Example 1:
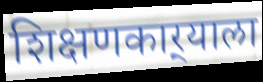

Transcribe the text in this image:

शिक्षणकार्याला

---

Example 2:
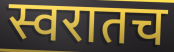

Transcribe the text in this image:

स्वरातच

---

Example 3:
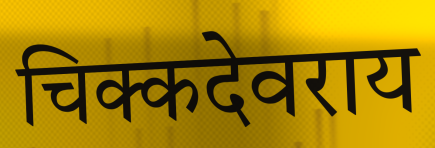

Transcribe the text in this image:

चिक्कदेवराय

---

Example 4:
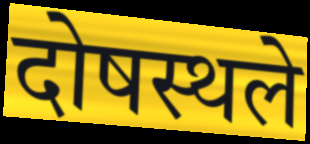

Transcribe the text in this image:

दोषस्थले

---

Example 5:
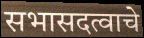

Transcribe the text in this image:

सभासदत्वाचे